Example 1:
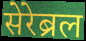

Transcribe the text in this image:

सेरेब्रल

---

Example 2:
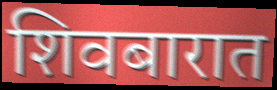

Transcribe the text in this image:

शिवबारात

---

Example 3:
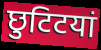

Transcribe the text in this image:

छुटिटयां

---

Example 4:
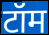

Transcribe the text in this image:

टॉम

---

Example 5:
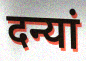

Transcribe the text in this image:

दन्यां